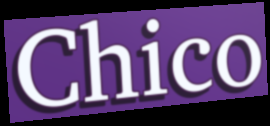
Chico